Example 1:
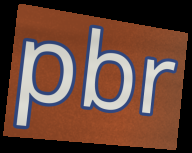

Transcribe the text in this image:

pbr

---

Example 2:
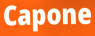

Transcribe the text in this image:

Capone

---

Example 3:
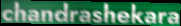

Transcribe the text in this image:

chandrashekara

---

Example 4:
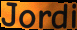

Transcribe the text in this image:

Jordi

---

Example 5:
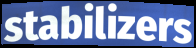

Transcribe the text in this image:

stabilizers